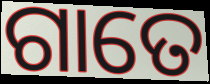
ଗାତେ